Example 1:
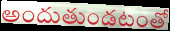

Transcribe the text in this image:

అందుతుండటంతో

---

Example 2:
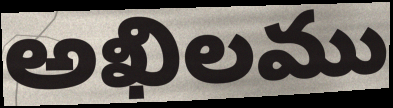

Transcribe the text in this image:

అఖిలము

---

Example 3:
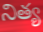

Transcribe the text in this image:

నిత్య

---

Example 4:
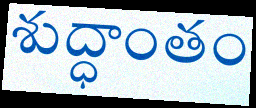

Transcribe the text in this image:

శుద్ధాంతం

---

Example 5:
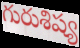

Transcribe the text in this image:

గురుశిష్య